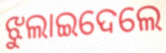
ଝୁଲାଇଦେଲେ